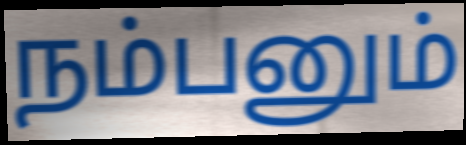
நம்பனும்